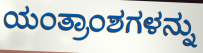
ಯಂತ್ರಾಂಶಗಳನ್ನು